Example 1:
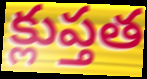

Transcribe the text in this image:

క్లుప్తత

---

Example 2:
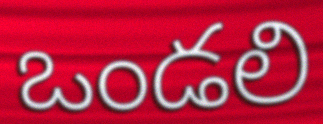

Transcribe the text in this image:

ఒండలి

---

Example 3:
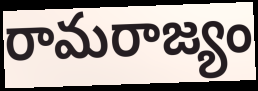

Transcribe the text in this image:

రామరాజ్యం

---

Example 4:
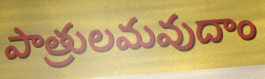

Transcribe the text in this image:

పాత్రులమవుదాం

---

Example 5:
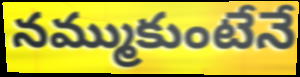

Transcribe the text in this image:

నమ్ముకుంటేనే